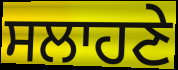
ਸਲਾਹਣੇ